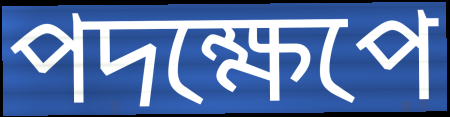
পদক্ষেপে